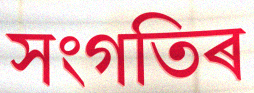
সংগতিৰ